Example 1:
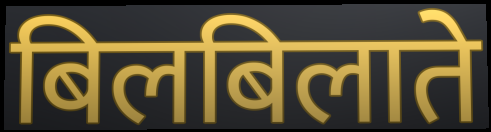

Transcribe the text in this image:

बिलबिलाते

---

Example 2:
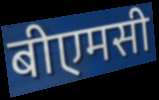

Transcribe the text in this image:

बीएमसी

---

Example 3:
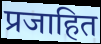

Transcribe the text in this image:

प्रजाहित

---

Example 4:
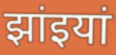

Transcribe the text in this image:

झांइयां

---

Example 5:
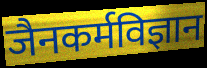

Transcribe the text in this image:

जैनकर्मविज्ञान